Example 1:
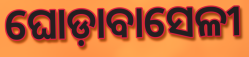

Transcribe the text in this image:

ଘୋଡ଼ାବାସେଳୀ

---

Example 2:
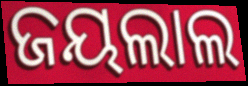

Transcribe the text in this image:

ଜୟଲାଲ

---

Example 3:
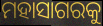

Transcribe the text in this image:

ମହାସାଗରକୁ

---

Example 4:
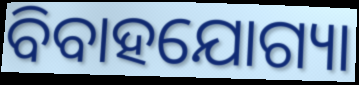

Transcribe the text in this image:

ବିବାହଯୋଗ୍ୟା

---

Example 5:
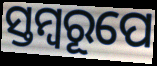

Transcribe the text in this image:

ସ୍ତମ୍ବରୂପେ